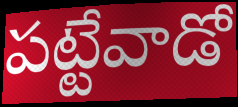
పట్టేవాడో